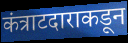
कंत्राटदाराकडून